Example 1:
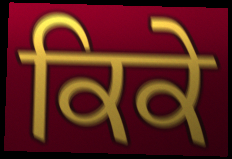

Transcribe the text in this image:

ਕਿਕੇ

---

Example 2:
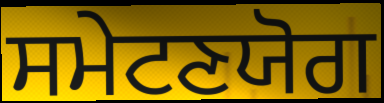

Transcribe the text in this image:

ਸਮੇਟਣਯੋਗ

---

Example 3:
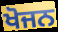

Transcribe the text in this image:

ਖੋਜਨ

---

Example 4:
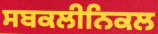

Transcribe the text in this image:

ਸਬਕਲੀਨਿਕਲ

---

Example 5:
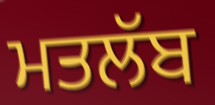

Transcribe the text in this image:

ਮਤਲੱਬ